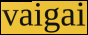
vaigai